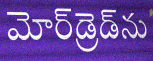
మోర్‌డ్రెడ్‌ను